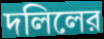
দলিলের